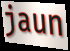
jaun